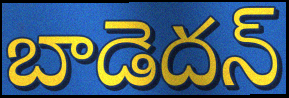
బాడెదన్